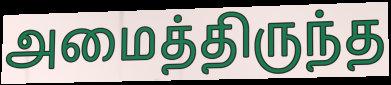
அமைத்திருந்த